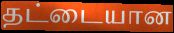
தட்டையான